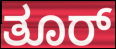
ತೂರ್